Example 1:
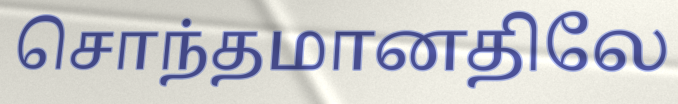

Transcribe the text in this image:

சொந்தமானதிலே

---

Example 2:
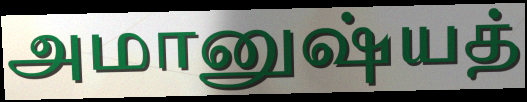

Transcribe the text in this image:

அமானுஷ்யத்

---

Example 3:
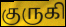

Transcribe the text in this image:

குருகி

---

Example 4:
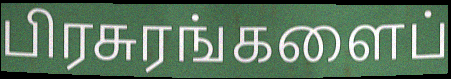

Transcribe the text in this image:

பிரசுரங்களைப்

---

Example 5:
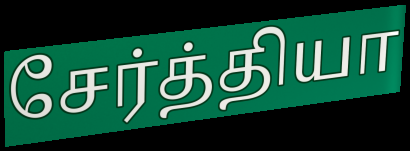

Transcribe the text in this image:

சேர்த்தியா